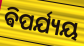
ଵିପର୍ଯ୍ୟୟ